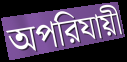
অপরিযায়ী